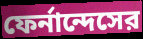
ফের্নান্দেসের